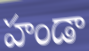
హండా